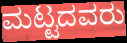
ಮಟ್ಟದವರು